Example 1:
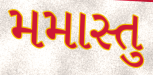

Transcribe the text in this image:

મમાસ્તુ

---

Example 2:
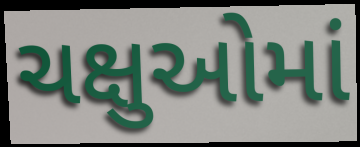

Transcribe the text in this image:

ચક્ષુઓમાં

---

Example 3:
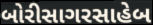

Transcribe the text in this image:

બોરીસાગરસાહેબ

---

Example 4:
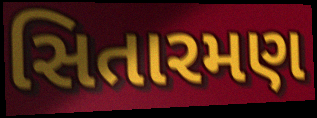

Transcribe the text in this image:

સિતારમણ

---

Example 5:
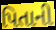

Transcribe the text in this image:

પિતાની